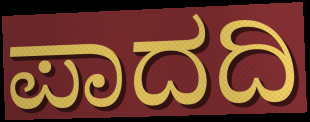
ಪಾದದಿ